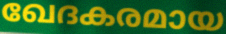
ഖേദകരമായ